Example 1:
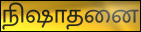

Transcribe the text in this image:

நிஷாதனை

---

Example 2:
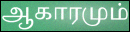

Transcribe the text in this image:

ஆகாரமும்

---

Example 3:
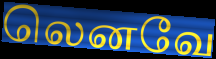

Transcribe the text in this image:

லெனவே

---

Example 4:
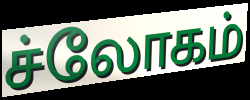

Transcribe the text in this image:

ச்லோகம்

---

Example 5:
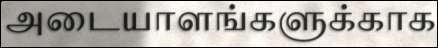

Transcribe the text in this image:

அடையாளங்களுக்காக